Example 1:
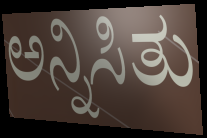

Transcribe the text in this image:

ಅನ್ನಿಸಿತು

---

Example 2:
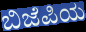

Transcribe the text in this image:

ಬಿಜೆಪಿಯ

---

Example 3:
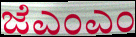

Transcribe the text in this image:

ಜೆಎಂಎಂ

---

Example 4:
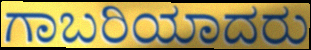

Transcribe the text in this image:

ಗಾಬರಿಯಾದರು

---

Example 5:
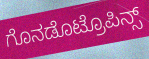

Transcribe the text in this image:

ಗೊನಡೊಟ್ರೊಪಿನ್ಸ್